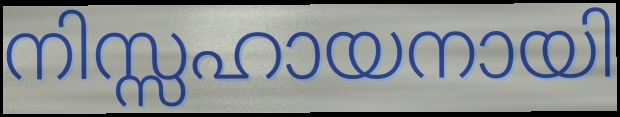
നിസ്സഹായനായി